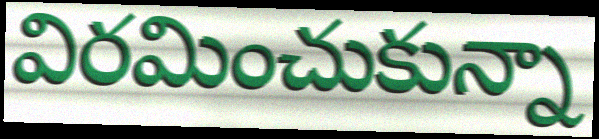
విరమించుకున్నా